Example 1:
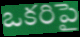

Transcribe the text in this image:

ఒకరిపై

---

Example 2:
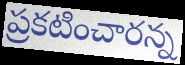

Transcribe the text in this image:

ప్రకటించారన్న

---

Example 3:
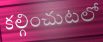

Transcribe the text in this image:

కల్గించుటలో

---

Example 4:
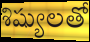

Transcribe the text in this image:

శిష్యులతో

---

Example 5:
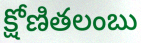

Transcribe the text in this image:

క్షోణితలంబు